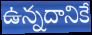
ఉన్నదానికే